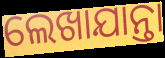
ଲେଖାଯାନ୍ତା